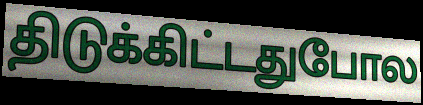
திடுக்கிட்டதுபோல